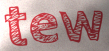
tew